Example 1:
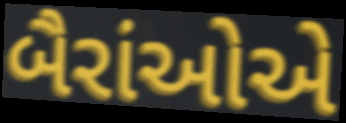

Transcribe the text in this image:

બૈરાંઓએ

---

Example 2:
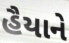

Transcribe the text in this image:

હૈયાને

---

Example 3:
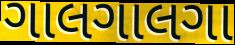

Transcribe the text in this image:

ગાલગાલગા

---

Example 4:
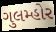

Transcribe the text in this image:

ગુલમ્હોર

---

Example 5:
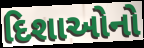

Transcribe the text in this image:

દિશાઓનો